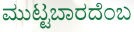
ಮುಟ್ಟಬಾರದೆಂಬ